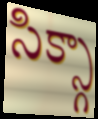
సిక్స్గా